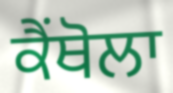
ਕੈਂਥੋਲਾ